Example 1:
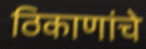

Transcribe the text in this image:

ठिकाणांचे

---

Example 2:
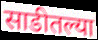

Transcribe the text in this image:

साडीतल्या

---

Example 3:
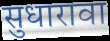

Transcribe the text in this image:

सुधारावा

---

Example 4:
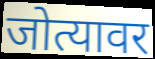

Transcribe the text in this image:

जोत्यावर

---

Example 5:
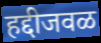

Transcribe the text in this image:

हद्दीजवळ